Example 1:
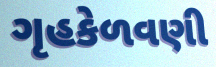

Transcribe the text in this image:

ગૃહકેળવણી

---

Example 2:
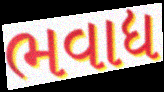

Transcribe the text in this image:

ભવાદ્ય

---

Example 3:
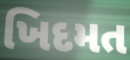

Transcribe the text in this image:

ખિદમત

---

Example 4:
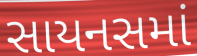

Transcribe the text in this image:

સાયનસમાં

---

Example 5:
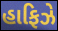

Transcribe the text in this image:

હાફિઝે